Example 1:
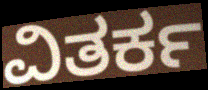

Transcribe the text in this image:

ವಿತರ್ಕ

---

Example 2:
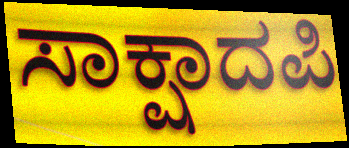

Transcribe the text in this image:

ಸಾಕ್ಷಾದಪಿ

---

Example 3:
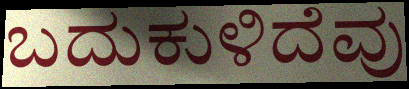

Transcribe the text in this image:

ಬದುಕುಳಿದೆವು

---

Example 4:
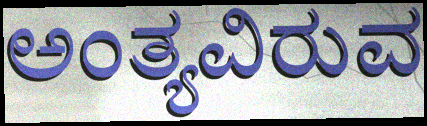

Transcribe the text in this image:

ಅಂತ್ಯವಿರುವ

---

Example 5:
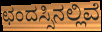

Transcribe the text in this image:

ಛಂದಸ್ಸಿನಲ್ಲಿವೆ